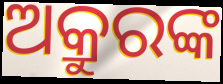
ଅକ୍ରୁରଙ୍କ